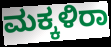
ಮಕ್ಕಳಿರಾ